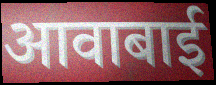
आवाबाई